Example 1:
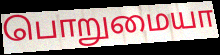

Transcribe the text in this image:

பொறுமையா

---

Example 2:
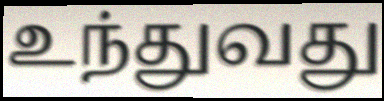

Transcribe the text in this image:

உந்துவது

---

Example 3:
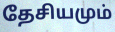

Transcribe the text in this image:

தேசியமும்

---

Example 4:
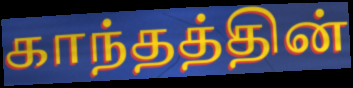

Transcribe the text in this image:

காந்தத்தின்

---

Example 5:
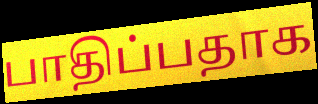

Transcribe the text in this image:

பாதிப்பதாக